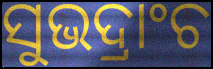
ସୁଭଦ୍ରାଂଚ